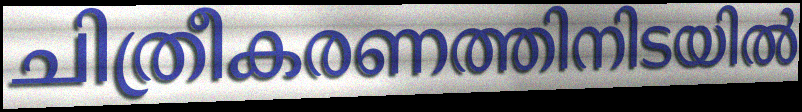
ചിത്രീകരണത്തിനിടയിൽ